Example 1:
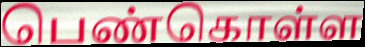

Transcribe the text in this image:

பெண்கொள்ள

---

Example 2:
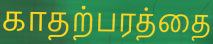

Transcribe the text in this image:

காதற்பரத்தை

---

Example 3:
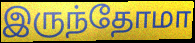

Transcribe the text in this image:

இருந்தோமா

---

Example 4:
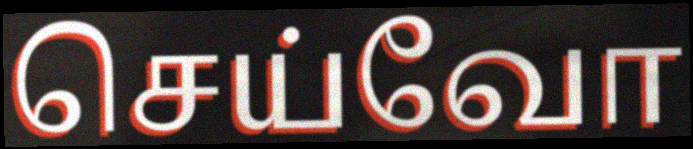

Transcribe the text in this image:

செய்வோ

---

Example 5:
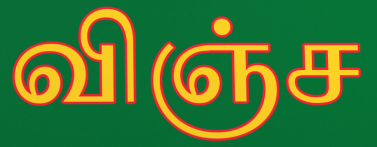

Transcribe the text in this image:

விஞ்ச